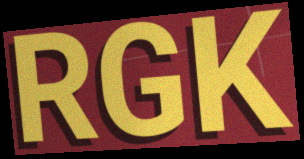
RGK